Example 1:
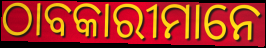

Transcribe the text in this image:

ଠାବକାରୀମାନେ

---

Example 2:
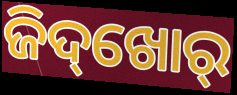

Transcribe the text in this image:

ଜିଦ୍‌ଖୋର୍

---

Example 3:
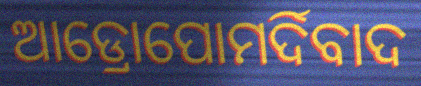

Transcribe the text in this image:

ଆଡ୍ରୋପୋମର୍ଦିବାଦ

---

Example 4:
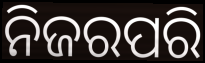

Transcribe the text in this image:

ନିଜରପରି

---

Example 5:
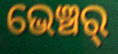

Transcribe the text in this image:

ଭେଞ୍ଚର୍